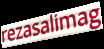
rezasalimag